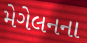
મેગેલનના